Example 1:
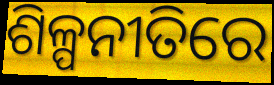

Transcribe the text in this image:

ଶିଳ୍ପନୀତିରେ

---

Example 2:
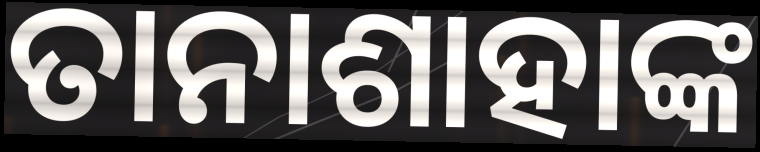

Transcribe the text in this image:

ତାନାଶାହାଙ୍କ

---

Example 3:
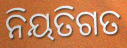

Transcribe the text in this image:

ନିୟତିଗତ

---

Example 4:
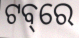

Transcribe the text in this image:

ଟବ୍‌ରେ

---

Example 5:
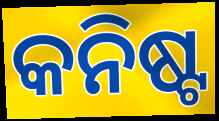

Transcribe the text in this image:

କନିଷ୍ଟ